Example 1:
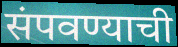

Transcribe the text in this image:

संपवण्याची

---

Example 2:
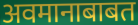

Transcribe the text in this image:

अवमानाबाबत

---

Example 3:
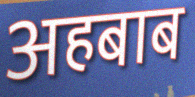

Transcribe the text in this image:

अहबाब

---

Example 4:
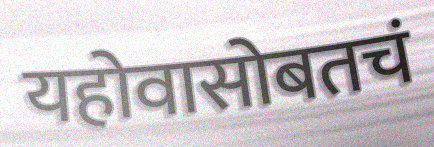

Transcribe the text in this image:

यहोवासोबतचं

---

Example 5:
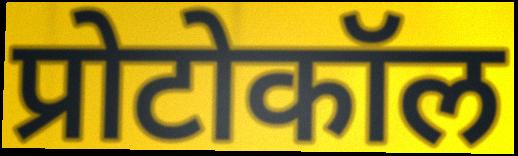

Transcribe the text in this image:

प्रोटोकॉल